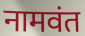
नामवंत